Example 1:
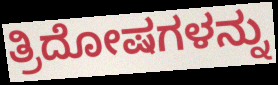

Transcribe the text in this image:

ತ್ರಿದೋಷಗಳನ್ನು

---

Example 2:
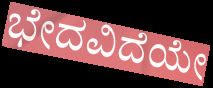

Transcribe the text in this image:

ಭೇದವಿದೆಯೇ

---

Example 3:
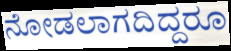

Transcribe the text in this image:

ನೋಡಲಾಗದಿದ್ದರೂ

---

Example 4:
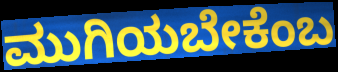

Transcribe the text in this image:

ಮುಗಿಯಬೇಕೆಂಬ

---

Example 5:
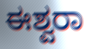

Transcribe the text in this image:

ಈಶ್ವರಾ